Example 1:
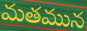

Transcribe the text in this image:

మతమున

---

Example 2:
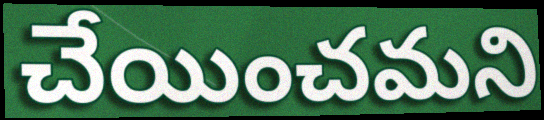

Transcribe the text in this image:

చేయించమని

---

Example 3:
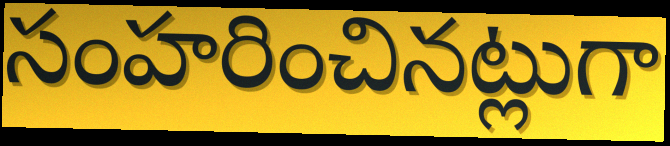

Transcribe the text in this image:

సంహరించినట్లుగా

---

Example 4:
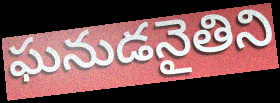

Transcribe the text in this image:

ఘనుడనైతిని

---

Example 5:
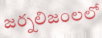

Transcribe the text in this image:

జర్నలిజంలలో